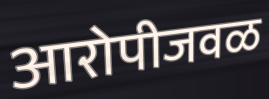
आरोपीजवळ